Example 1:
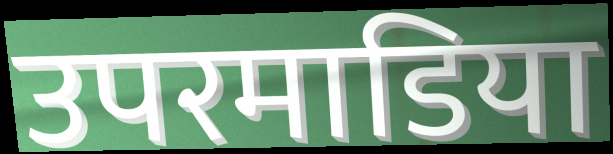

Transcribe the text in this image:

उपरमाडिया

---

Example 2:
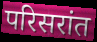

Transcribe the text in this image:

परिसरांत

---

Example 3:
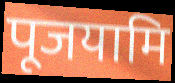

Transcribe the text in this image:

पूजयामि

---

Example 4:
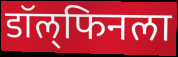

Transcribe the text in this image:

डॉल्फिनला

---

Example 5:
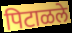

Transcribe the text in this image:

पिटाळले